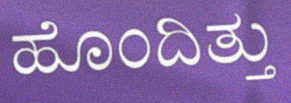
ಹೊಂದಿತ್ತು